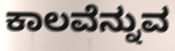
ಕಾಲವೆನ್ನುವ